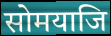
सोमयाजि